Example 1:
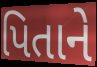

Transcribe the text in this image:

પિતાને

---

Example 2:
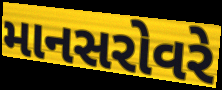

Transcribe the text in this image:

માનસરોવરે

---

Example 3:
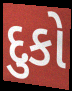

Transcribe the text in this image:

દુકો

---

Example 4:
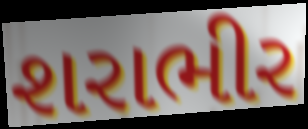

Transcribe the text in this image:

શરાભીર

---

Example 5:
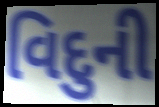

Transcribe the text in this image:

વિદુની